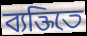
ব্যক্তিতে